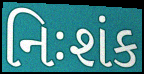
નિઃશંક